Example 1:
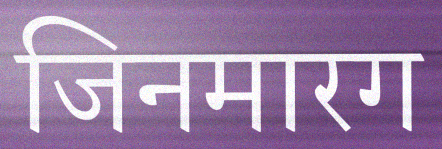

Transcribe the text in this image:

जिनमारग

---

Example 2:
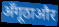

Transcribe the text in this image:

अँगूठाऔर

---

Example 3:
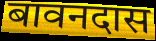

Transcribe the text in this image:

बावनदास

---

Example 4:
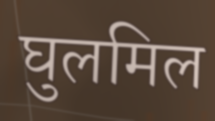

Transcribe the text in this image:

घुलमिल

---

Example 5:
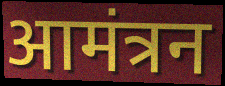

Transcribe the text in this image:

आमंत्रन